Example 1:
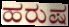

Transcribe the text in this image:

ಹರುಷ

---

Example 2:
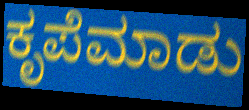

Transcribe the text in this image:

ಕೃಪೆಮಾಡು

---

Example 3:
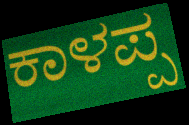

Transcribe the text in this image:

ಕಾಳಪ್ಪ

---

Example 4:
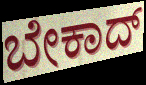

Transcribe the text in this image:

ಬೇಕಾದ್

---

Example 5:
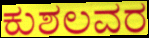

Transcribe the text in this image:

ಕುಶಲವರ